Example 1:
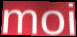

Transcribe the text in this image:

moi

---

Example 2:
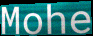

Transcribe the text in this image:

Mohe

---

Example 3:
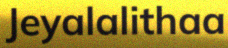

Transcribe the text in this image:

Jeyalalithaa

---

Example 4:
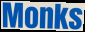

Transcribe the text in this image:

Monks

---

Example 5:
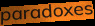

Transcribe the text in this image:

paradoxes